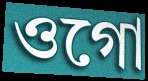
ওগো